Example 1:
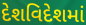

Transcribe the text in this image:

દેશવિદેશમાં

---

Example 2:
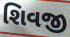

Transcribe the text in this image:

શિવજી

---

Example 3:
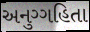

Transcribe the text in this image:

અનુગ્ગહિતા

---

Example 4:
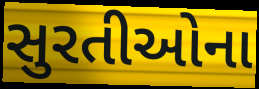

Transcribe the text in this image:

સુરતીઓના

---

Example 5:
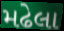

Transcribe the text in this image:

મઢેલા